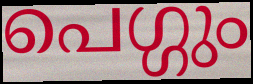
പെഗ്ഗും